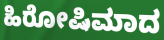
ಹಿರೋಷಿಮಾದ